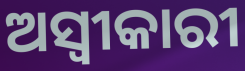
ଅସ୍ଵୀକାରୀ